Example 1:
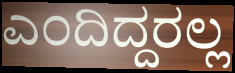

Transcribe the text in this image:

ಎಂದಿದ್ದರಲ್ಲ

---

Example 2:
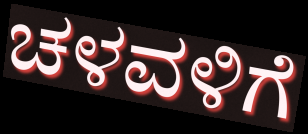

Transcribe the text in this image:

ಚಳವಳಿಗೆ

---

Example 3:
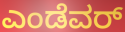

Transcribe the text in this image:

ಎಂಡೆವರ್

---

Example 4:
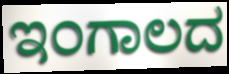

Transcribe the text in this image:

ಇಂಗಾಲದ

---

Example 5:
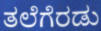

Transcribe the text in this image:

ತಲೆಗೆರಡು